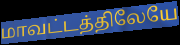
மாவட்டத்திலேயே